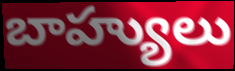
బాహ్యులు